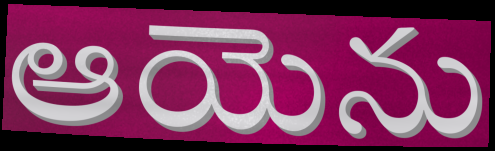
ఆయెను